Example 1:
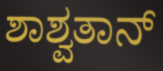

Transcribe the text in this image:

ಶಾಶ್ವತಾನ್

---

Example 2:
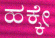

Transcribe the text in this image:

ಹಕ್ಕೇ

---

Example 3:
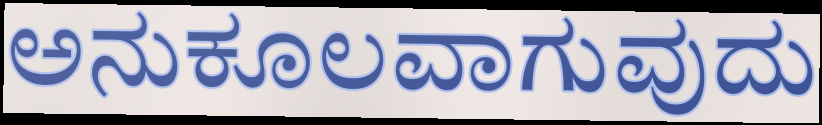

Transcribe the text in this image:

ಅನುಕೂಲವಾಗುವುದು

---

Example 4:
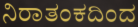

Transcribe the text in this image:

ನಿರಾತಂಕದಿಂದ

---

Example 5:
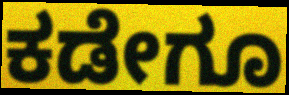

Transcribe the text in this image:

ಕಡೇಗೂ